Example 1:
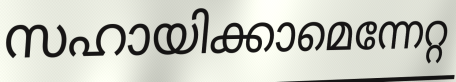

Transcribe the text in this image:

സഹായിക്കാമെന്നേറ്റ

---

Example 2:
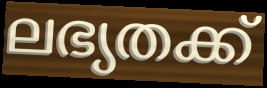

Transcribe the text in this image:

ലഭ്യതക്ക്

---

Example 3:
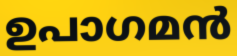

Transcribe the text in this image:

ഉപാഗമൻ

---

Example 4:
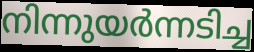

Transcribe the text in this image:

നിന്നുയർന്നടിച്ച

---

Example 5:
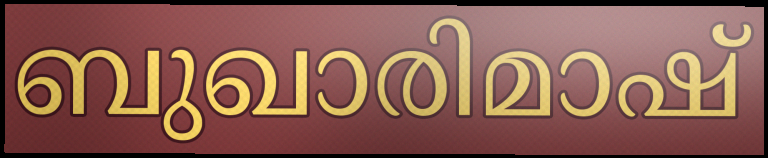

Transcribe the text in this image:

ബുഖാരിമാഷ്